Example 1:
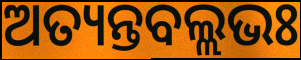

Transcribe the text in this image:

ଅତ୍ୟନ୍ତବଲ୍ଲଭଃ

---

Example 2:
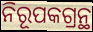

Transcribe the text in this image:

ନିରୂପକଗ୍ରନ୍ଥ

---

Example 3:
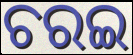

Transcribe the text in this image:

ଚରଇ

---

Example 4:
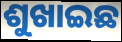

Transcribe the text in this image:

ଶୁଖାଇଛ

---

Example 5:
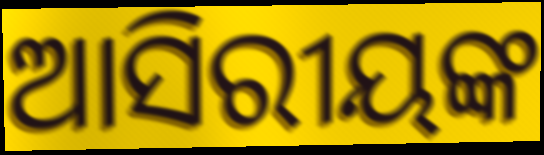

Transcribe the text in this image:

ଆସିରୀୟଙ୍କ